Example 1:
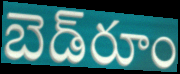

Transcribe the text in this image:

బెడ్‌రూం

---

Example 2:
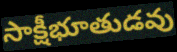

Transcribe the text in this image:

సాక్షీభూతుడవు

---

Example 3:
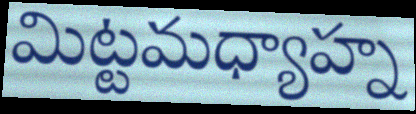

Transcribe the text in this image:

మిట్టమధ్యాహ్న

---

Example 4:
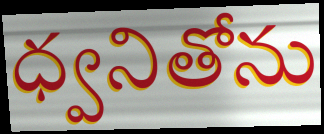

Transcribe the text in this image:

ధ్వనితోను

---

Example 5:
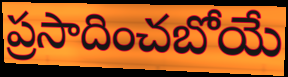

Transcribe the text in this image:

ప్రసాదించబోయే